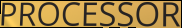
PROCESSOR